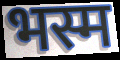
भस्म